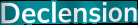
Declension